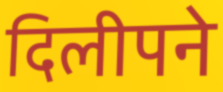
दिलीपने